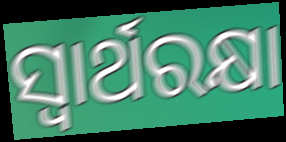
ସ୍ଵାର୍ଥରକ୍ଷା